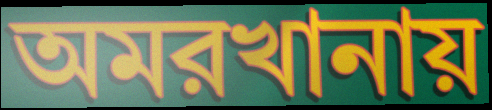
অমরখানায়